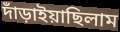
দাঁড়াইয়াছিলাম